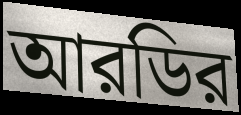
আরডির